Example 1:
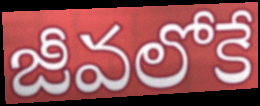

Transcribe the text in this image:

జీవలోకే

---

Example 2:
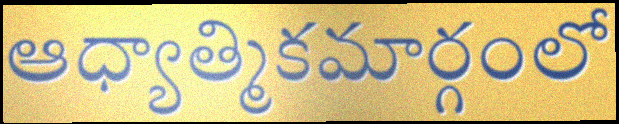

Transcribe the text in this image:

ఆధ్యాత్మికమార్గంలో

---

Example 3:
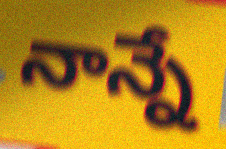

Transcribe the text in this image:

నాన్నే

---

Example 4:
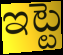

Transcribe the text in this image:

ఇట్టె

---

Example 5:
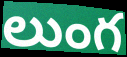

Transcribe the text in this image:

లుంగ